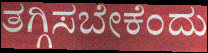
ತಗ್ಗಿಸಬೇಕೆಂದು